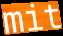
mit